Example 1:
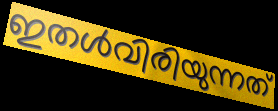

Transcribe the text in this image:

ഇതൾവിരിയുന്നത്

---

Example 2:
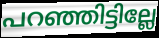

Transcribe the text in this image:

പറഞ്ഞിട്ടില്ലേ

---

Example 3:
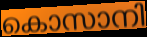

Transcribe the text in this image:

കൊസാനി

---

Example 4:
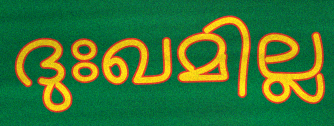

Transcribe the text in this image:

ദുഃഖമില്ല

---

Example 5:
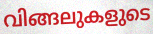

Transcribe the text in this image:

വിങ്ങലുകളുടെ